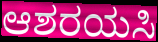
ಆಶರಯಸಿ